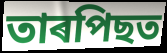
তাৰপিছত